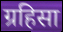
ग्रहिसा